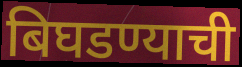
बिघडण्याची